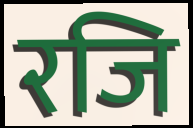
रजि